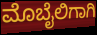
ಮೊಬೈಲಿಗಾಗಿ